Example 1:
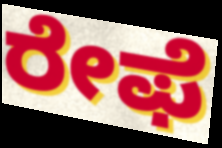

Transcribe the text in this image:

ರೇಫೆ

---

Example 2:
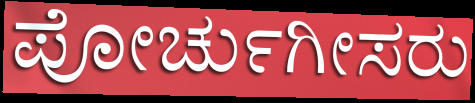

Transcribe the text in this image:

ಪೋರ್ಚುಗೀಸರು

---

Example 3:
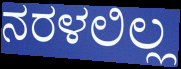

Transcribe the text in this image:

ನರಳಲಿಲ್ಲ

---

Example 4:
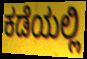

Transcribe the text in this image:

ಕಡೆಯಲ್ಲಿ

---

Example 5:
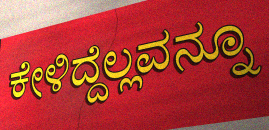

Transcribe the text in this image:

ಕೇಳಿದ್ದೆಲ್ಲವನ್ನೂ